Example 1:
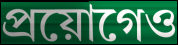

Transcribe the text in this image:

প্ৰয়োগেও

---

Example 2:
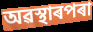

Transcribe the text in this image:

অৱস্থাৰপৰা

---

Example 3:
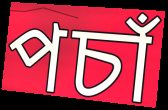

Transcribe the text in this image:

পচাঁ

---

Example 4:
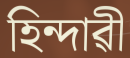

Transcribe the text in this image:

হিন্দাৱী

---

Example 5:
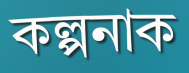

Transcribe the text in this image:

কল্পনাক